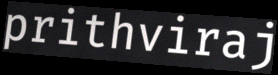
prithviraj